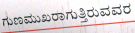
ಗುಣಮುಖರಾಗುತ್ತಿರುವವರ